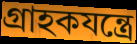
গ্রাহকযন্ত্রে